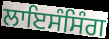
ਲਾਇਸੰਸਿੰਗ